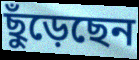
ছুঁড়েছেন